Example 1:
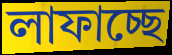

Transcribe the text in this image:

লাফাচ্ছে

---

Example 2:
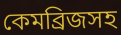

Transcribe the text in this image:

কেমব্রিজসহ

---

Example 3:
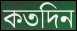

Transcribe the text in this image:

কতদিন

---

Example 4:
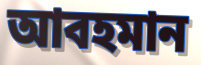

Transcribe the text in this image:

আবহমান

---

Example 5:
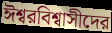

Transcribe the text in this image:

ঈশ্বরবিশ্বাসীদের